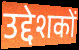
उद्देशकों